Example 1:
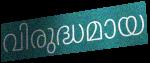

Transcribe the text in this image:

വിരുദ്ധമായ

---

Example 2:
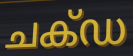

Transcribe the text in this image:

ചക്ഡ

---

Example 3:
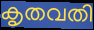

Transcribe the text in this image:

കൃതവതി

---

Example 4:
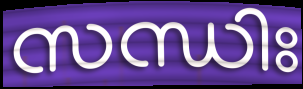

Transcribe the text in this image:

സന്ധിഃ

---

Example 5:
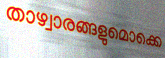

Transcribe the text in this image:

താഴ്വാരങ്ങളുമൊക്കെ